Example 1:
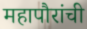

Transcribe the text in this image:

महापौरांची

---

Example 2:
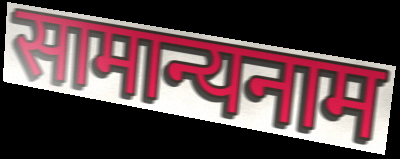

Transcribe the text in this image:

सामान्यनाम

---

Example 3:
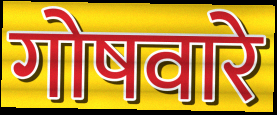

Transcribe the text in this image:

गोषवारे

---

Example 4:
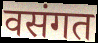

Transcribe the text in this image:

वसंगत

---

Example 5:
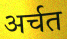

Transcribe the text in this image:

अर्चत